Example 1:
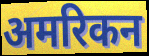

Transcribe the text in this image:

अमरिकन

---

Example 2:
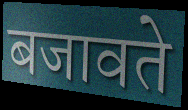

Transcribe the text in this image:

बजावते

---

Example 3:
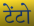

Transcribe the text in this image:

टेंटो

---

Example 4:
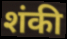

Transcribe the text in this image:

शंकी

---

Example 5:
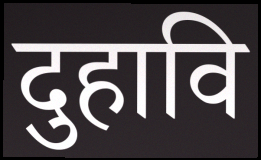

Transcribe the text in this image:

दुहावि